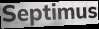
Septimus